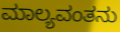
ಮಾಲ್ಯವಂತನು